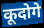
कूदोगे